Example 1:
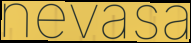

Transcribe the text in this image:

nevasa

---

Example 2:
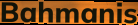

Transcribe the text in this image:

Bahmanis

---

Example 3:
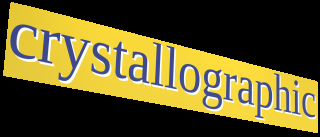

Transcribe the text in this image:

crystallographic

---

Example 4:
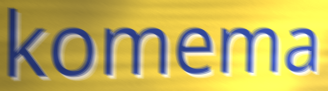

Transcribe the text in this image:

komema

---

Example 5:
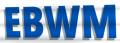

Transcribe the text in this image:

EBWM